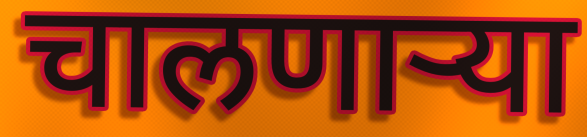
चालणाऱ्या